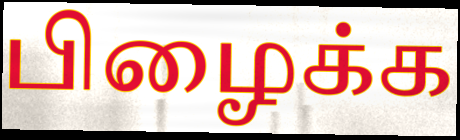
பிழைக்க